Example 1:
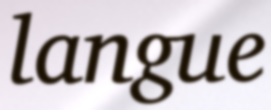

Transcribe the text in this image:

langue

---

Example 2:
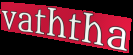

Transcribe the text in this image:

vaththa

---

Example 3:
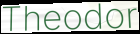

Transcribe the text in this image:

Theodor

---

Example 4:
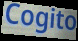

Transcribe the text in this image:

Cogito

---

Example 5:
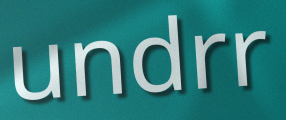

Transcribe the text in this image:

undrr